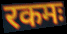
रकमः